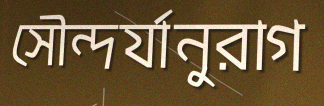
সৌন্দর্যানুরাগ